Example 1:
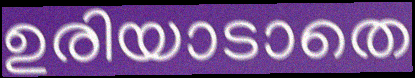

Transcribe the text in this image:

ഉരിയാടാതെ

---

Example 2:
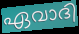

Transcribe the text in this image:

ഏവാദി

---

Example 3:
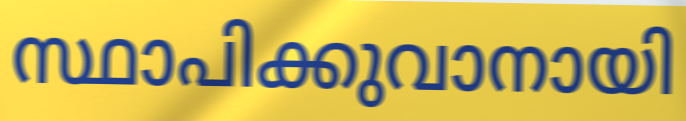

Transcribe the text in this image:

സ്ഥാപിക്കുവാനായി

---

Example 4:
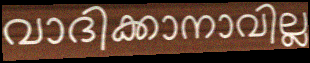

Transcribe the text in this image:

വാദിക്കാനാവില്ല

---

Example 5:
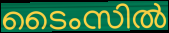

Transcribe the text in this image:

ടൈംസിൽ